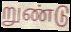
றுண்டு